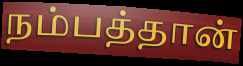
நம்பத்தான்